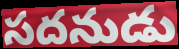
సదనుడు